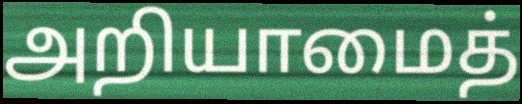
அறியாமைத்